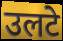
उलटे